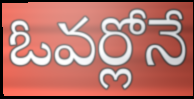
ఓవర్లోనే